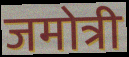
जमोत्री